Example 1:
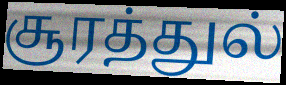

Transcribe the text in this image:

சூரத்துல்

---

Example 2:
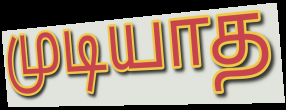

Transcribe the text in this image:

முடியாத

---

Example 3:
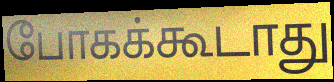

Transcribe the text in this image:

போகக்கூடாது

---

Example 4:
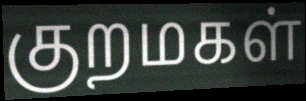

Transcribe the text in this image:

குறமகள்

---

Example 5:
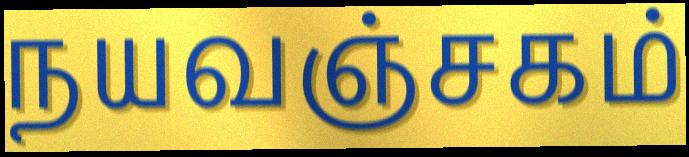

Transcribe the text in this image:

நயவஞ்சகம்